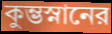
কুম্ভস্নানের